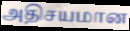
அதிசயமான